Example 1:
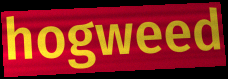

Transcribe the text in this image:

hogweed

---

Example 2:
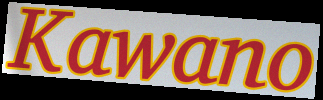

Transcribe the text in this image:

Kawano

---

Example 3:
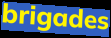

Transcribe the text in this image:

brigades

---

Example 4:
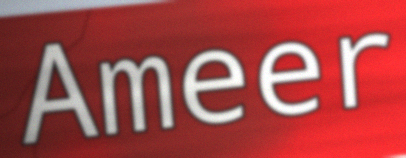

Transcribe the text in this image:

Ameer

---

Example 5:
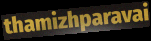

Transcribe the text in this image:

thamizhparavai